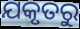
ଯକୃତରୁ